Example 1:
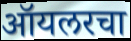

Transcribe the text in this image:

ऑयलरचा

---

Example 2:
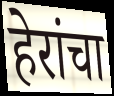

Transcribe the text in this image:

हेरांचा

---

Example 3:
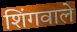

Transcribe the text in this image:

शिंगवाले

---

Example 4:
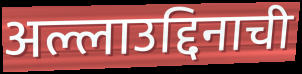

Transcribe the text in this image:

अल्लाउद्दिनाची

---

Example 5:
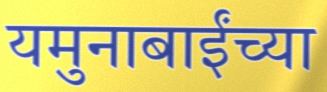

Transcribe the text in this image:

यमुनाबाईंच्या